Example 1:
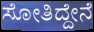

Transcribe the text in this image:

ಸೋತಿದ್ದೇನೆ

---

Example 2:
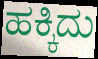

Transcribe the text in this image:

ಹಕ್ಕಿದು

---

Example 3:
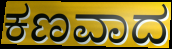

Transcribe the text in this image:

ಕಣವಾದ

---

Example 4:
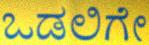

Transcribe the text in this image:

ಒಡಲಿಗೇ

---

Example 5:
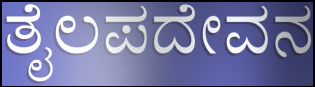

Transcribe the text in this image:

ತೈಲಪದೇವನ